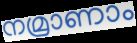
നമ്രാണാം